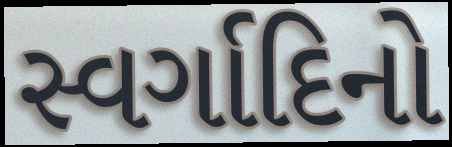
સ્વર્ગાદિનો